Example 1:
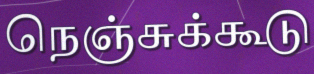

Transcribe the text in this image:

நெஞ்சுக்கூடு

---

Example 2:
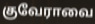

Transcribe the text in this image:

குவேராவை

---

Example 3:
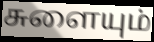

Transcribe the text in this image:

சுளையும்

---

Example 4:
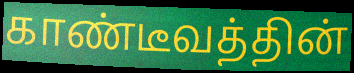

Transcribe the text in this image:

காண்டீவத்தின்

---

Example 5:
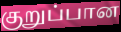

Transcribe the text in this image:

குறுப்பான